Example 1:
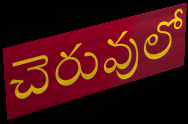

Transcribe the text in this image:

చెరువులో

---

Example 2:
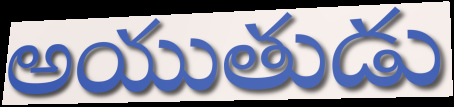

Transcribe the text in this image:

అయుతుడు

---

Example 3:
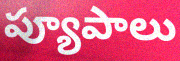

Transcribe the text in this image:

ప్యూపాలు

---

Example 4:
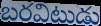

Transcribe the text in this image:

బరవిటుడు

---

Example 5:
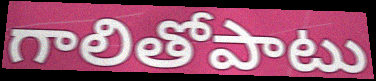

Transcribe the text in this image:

గాలితోపాటు